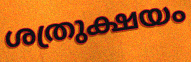
ശത്രുക്ഷയം